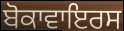
ਬੋਕਾਵਾਇਰਸ